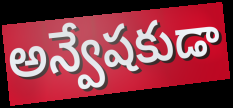
అన్వేషకుడా